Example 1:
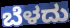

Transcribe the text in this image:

ಬೆಳದು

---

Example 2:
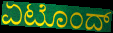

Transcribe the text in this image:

ಏಟೊಂದ್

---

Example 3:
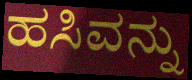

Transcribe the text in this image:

ಹಸಿವನ್ನು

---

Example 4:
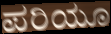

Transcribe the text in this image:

ಪರಿಯೂ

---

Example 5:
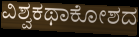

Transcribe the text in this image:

ವಿಶ್ವಕಥಾಕೋಶದ